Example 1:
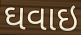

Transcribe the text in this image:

ઘવાઇ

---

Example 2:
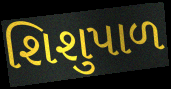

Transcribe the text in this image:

શિશુપાળ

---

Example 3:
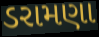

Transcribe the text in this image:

ડરામણા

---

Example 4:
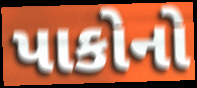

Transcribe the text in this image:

પાકોનો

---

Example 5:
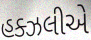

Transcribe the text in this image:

હક્ઝલીએ